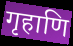
गृहाणि